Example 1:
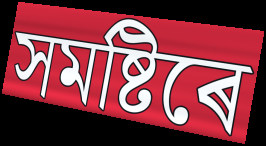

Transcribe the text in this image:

সমষ্টিৰে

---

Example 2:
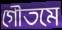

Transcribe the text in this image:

গৌতমে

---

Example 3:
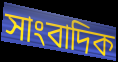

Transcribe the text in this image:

সাংবাদিক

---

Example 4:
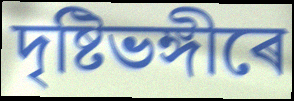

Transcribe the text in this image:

দৃষ্টিভঙ্গীৰে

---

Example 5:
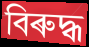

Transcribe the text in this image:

বিৰুদ্ধ